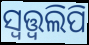
ସ୍ୱତ୍ତ୍ୱଲିପି